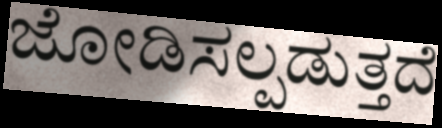
ಜೋಡಿಸಲ್ಪಡುತ್ತದೆ